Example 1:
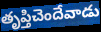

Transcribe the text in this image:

తృప్తిచెందేవాడు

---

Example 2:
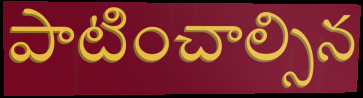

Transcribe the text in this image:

పాటించాల్సిన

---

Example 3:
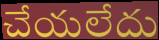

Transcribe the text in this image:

చేయలేదు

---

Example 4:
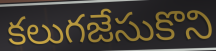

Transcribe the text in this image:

కలుగజేసుకొని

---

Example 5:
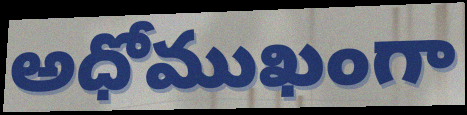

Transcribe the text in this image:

అధోముఖంగా